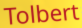
Tolbert